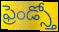
ఫ్రెండ్స్తో